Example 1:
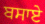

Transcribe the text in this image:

ਬਸਾਏ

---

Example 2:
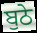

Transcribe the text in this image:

ਬੁਠੇ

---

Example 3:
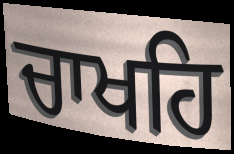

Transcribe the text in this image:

ਚਾਖਹਿ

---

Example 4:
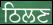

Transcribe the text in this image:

ਠਿਲਣ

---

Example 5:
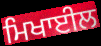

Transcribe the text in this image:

ਮਿਖਾਈਲ